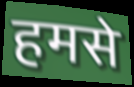
हमसे